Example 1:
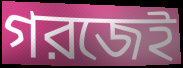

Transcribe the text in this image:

গরজেই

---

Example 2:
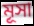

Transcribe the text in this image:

মূসা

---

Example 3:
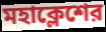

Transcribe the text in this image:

মহাক্লেশের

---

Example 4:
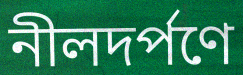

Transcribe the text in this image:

নীলদর্পণে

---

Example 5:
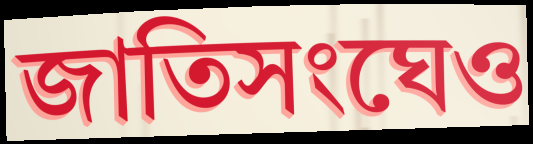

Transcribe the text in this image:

জাতিসংঘেও